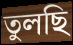
তুলছি